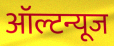
ऑल्टन्यूज